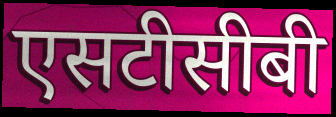
एसटीसीबी